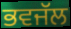
ਭਵਜੱਲ